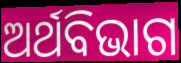
ଅର୍ଥବିଭାଗ